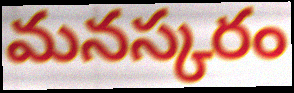
మనస్కరం